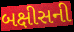
બક્ષીસની